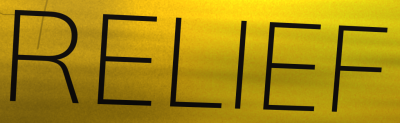
RELIEF